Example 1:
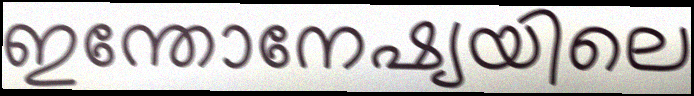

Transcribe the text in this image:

ഇന്തോനേഷ്യയിലെ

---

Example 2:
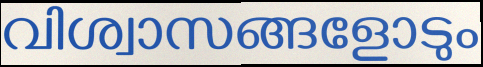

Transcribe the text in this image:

വിശ്വാസങ്ങളോടും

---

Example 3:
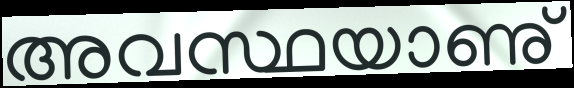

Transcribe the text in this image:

അവസ്ഥയാണു്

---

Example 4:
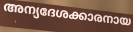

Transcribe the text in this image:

അന്യദേശക്കാരനായ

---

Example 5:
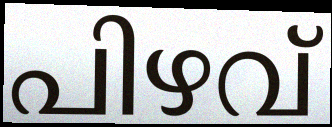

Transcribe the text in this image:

പിഴവ്